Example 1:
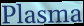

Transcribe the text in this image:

Plasma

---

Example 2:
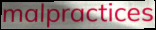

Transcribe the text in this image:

malpractices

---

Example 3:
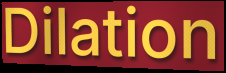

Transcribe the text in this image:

Dilation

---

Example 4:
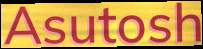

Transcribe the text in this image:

Asutosh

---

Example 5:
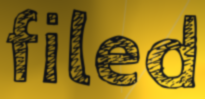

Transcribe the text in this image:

filed